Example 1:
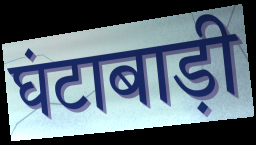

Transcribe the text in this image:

घंटाबाड़ी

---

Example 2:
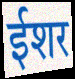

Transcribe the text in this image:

ईशर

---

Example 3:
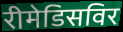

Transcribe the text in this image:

रीमेडिसविर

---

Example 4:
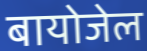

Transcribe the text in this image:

बायोजेल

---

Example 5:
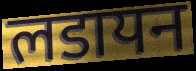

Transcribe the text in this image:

लडायन